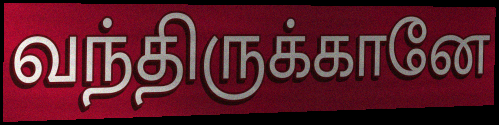
வந்திருக்கானே